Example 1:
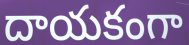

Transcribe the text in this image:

దాయకంగా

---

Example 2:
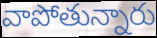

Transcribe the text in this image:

వాపోతున్నారు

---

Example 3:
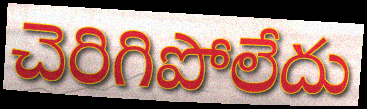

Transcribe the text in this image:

చెరిగిపోలేదు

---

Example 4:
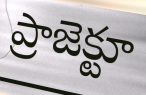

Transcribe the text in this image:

ప్రాజెక్టూ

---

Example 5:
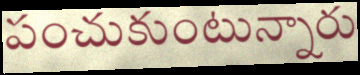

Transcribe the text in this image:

పంచుకుంటున్నారు